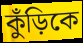
কুঁড়িকে